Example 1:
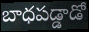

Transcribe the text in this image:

బాధపడ్డాడో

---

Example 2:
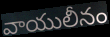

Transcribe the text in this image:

వాయులీనం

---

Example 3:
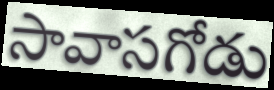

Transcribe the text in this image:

సావాసగోడు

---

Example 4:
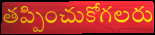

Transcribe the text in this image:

తప్పించుకోగలరు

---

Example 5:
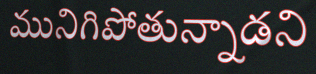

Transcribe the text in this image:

మునిగిపోతున్నాడని